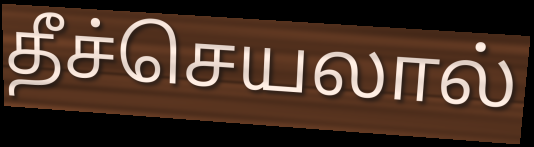
தீச்செயலால்